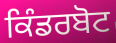
ਕਿੰਡਰਬੋਟ